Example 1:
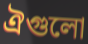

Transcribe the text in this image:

ঐগুলো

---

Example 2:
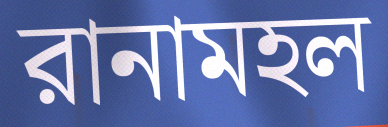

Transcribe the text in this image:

রানামহল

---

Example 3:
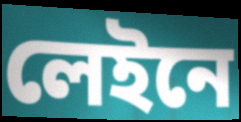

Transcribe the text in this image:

লেইনে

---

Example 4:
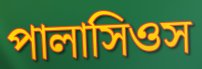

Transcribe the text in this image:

পালাসিওস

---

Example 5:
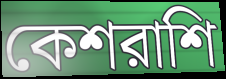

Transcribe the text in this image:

কেশরাশি